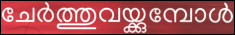
ചേർത്തുവയ്ക്കുമ്പോൾ